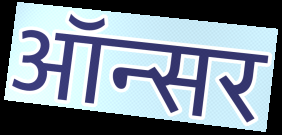
ऑन्सर